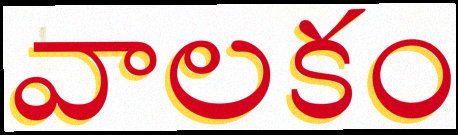
వాలకం